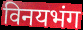
विनयभंग